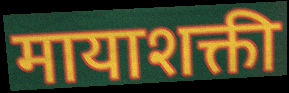
मायाशक्ती